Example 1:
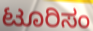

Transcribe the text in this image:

ಟೂರಿಸಂ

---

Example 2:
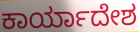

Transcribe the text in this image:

ಕಾರ್ಯಾದೇಶ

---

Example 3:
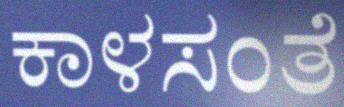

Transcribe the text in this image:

ಕಾಳಸಂತೆ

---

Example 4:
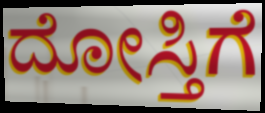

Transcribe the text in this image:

ದೋಸ್ತಿಗೆ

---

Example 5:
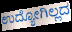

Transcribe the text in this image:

ಉದ್ಯೋಗಿಲ್ಲದ